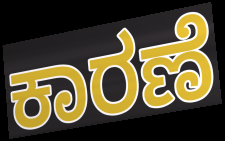
ಕಾರಣೆ